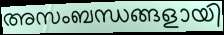
അസംബന്ധങ്ങളായി